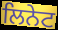
ਲਿਨੇਟ